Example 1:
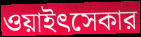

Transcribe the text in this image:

ওয়াইৎসেকার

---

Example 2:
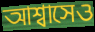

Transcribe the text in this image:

আশ্বাসেও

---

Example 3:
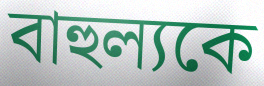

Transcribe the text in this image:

বাহুল্যকে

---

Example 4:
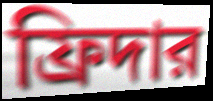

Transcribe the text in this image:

ফ্রিদার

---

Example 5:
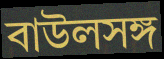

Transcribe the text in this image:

বাউলসঙ্গ